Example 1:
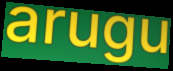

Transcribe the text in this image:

arugu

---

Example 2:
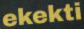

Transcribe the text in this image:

ekekti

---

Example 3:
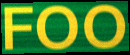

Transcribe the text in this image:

FOO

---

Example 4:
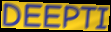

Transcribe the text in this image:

DEEPTI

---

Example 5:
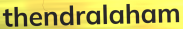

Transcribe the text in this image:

thendralaham